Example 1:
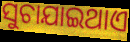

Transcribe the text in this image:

ସୁଚାଯାଇଥାଏ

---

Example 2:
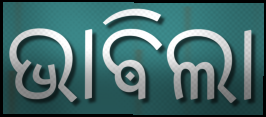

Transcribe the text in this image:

ଭାଵିଲା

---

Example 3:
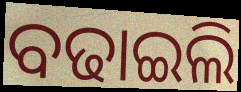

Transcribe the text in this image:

ବଢାଇଲି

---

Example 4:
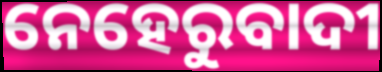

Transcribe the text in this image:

ନେହେରୁବାଦୀ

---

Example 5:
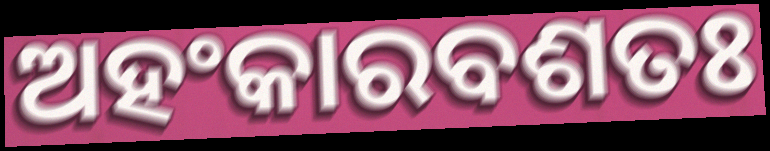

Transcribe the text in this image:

ଅହଂକାରବଶତଃ